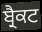
ਬ੍ਰੈਕਟ